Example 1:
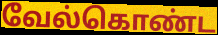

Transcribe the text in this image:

வேல்கொண்ட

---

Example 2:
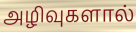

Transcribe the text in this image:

அழிவுகளால்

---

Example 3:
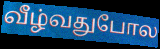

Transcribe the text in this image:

வீழ்வதுபோல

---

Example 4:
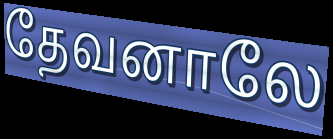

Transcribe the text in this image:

தேவனாலே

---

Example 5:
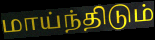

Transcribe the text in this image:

மாய்ந்திடும்